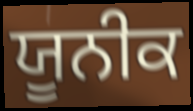
ਯੂਨੀਕ